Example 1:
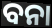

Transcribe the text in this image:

ବନା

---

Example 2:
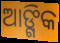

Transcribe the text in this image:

ଆଙ୍ଗିକ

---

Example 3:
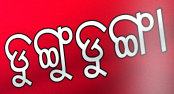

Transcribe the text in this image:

ଡୁଙ୍ଗୁଡୁଙ୍ଗା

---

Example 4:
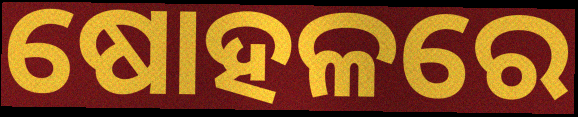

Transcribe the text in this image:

ଷୋହଳରେ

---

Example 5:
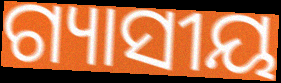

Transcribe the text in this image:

ଗ୍ୟାସୀୟ